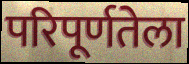
परिपूर्णतेला